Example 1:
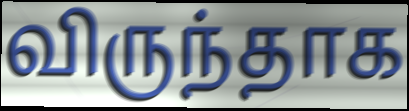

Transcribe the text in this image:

விருந்தாக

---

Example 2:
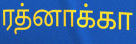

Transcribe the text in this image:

ரத்னாக்கா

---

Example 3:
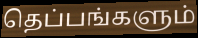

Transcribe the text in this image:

தெப்பங்களும்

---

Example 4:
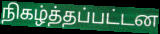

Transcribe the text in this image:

நிகழ்த்தப்பட்டன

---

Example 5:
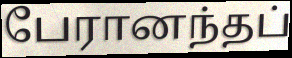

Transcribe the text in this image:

பேரானந்தப்